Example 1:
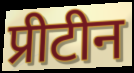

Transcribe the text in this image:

प्रीटीन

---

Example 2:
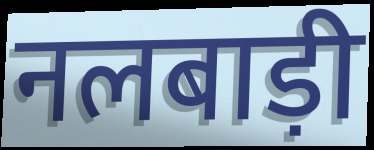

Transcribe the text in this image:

नलबाड़ी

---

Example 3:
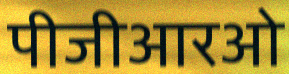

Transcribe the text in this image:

पीजीआरओ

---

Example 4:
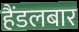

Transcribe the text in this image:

हैंडलबार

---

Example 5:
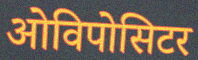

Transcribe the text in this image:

ओविपोसिटर